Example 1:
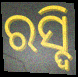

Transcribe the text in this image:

ରସ୍ଦି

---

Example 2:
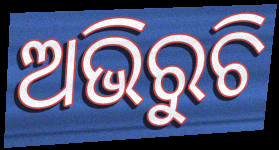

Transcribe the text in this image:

ଅଭିରୁଚି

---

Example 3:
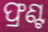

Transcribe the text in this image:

ଫ୍ରଣ୍ଟ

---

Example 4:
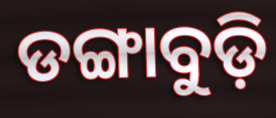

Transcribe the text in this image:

ଡଙ୍ଗାବୁଡ଼ି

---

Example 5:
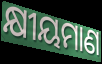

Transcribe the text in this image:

କ୍ଷୀୟମାଣ